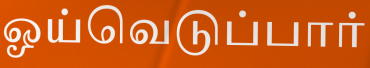
ஓய்வெடுப்பார்